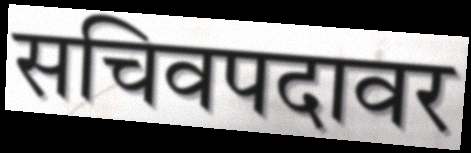
सचिवपदावर